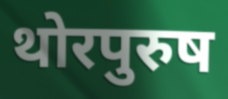
थोरपुरुष